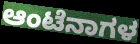
ಆಂಟೆನಾಗಳ